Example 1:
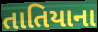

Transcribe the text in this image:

તાતિયાના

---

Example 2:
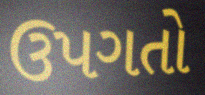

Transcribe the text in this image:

ઉપગતો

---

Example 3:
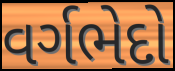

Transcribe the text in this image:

વર્ગભેદો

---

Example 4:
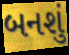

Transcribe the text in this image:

બનશું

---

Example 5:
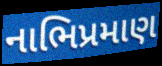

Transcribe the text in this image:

નાભિપ્રમાણ